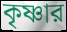
কৃষ্ণার